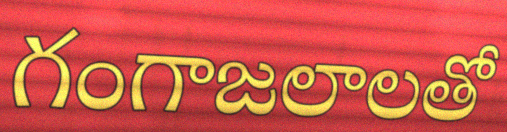
గంగాజలాలతో